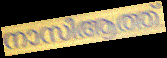
നാസിആത്ത്